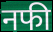
नफी